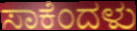
ಸಾಕೆಂದಳು